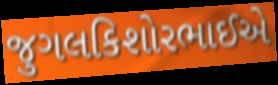
જુગલકિશોરભાઈએ